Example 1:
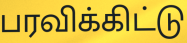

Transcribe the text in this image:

பரவிக்கிட்டு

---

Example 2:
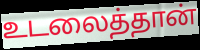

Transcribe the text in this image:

உடலைத்தான்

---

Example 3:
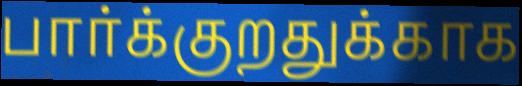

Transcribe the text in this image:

பார்க்குறதுக்காக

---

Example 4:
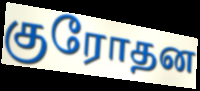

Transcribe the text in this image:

குரோதன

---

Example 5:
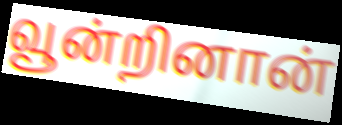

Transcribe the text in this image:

வூன்றினான்